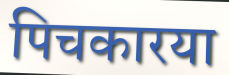
पिचकारया